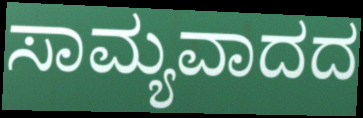
ಸಾಮ್ಯವಾದದ